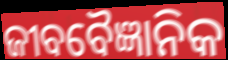
ଜୀବବୈଜ୍ଞାନିକ